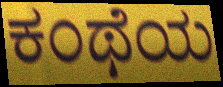
ಕಂಥೆಯ